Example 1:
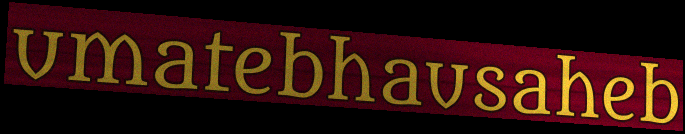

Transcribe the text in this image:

umatebhausaheb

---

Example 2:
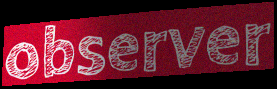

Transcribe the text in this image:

observer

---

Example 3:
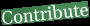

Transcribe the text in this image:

Contribute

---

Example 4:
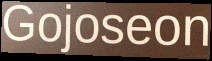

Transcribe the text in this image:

Gojoseon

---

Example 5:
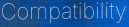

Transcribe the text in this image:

Compatibility